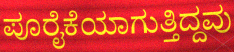
ಪೂರೈಕೆಯಾಗುತ್ತಿದ್ದವು